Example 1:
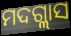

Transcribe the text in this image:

ମଦଗ୍ଲାସ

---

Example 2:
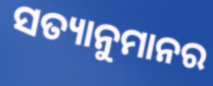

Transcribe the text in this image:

ସତ୍ୟାନୁମାନର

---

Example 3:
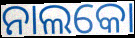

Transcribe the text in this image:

ନାଲକୋ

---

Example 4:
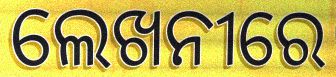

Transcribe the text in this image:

ଲେଖନୀରେ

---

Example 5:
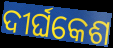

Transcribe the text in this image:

ଦୀର୍ଘକେଶ